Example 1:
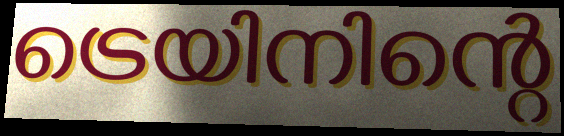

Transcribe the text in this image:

ട്രെയിനിന്റെ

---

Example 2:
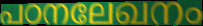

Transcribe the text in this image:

പഠനലേഖനം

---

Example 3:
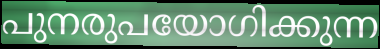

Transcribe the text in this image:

പുനരുപയോഗിക്കുന്ന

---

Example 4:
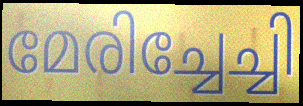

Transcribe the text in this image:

മേരിച്ചേച്ചി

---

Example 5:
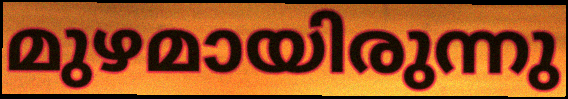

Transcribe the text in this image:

മുഴമായിരുന്നു